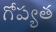
గోప్యత